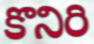
కొనిరి